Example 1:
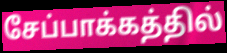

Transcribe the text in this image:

சேப்பாக்கத்தில்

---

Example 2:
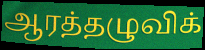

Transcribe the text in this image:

ஆரத்தழுவிக்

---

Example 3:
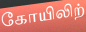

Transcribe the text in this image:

கோயிலிற்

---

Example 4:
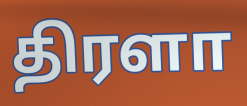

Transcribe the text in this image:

திரளா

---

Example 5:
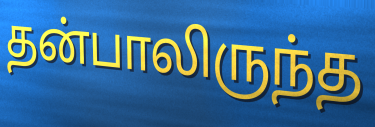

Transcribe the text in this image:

தன்பாலிருந்த